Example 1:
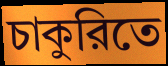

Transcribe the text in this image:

চাকুরিতে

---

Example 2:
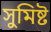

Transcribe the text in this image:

সুমিষ্ট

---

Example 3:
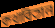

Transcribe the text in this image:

কথাবিতান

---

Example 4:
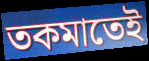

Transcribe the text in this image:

তকমাতেই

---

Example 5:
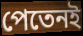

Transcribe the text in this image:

পেতেনই